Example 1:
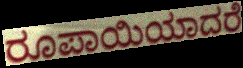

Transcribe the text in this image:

ರೂಪಾಯಿಯಾದರೆ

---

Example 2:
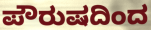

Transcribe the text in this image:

ಪೌರುಷದಿಂದ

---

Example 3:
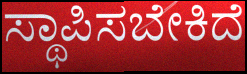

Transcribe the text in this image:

ಸ್ಥಾಪಿಸಬೇಕಿದೆ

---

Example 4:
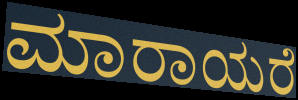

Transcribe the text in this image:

ಮಾರಾಯರೆ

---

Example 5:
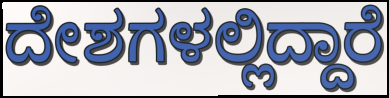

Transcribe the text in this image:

ದೇಶಗಳಲ್ಲಿದ್ದಾರೆ